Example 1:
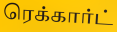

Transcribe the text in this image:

ரெக்கார்ட்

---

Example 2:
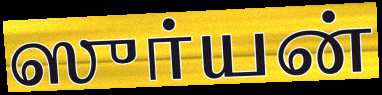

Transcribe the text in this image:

ஸுர்யன்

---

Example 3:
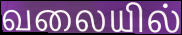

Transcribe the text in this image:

வலையில்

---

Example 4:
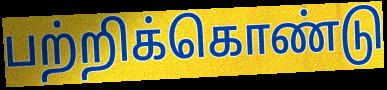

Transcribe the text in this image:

பற்றிக்கொண்டு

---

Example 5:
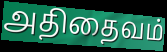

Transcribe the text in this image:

அதிதைவம்